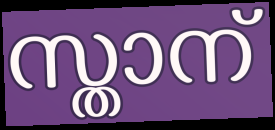
സ്താന്